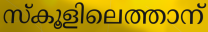
സ്കൂളിലെത്താന്